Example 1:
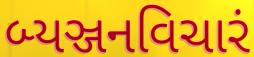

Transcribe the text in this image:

બ્યઞ્જનવિચારં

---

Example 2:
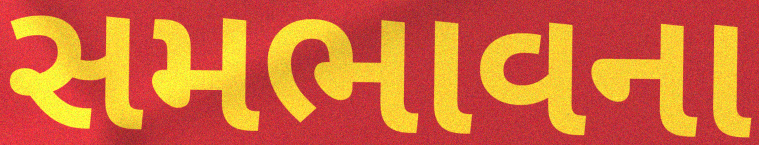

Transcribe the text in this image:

સમભાવના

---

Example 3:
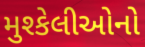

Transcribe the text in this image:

મુશ્કેલીઓનો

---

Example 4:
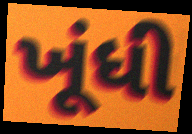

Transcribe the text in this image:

ખૂંધી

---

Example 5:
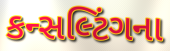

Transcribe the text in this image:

કન્સલ્ટિંગના